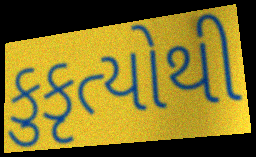
કુકૃત્યોથી